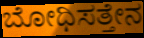
ಬೋಧಿಸತ್ತೇನ